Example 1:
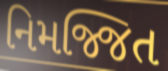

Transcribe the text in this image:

નિમજ્જિત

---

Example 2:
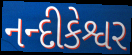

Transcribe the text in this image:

નન્દીકેશ્વર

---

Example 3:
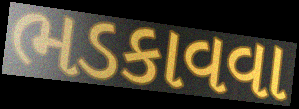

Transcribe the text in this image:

ભડકાવવા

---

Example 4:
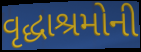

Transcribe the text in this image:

વૃદ્ધાશ્રમોની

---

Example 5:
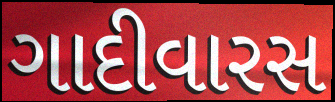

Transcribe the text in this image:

ગાદીવારસ